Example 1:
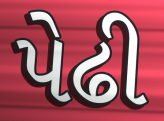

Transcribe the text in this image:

પેઢી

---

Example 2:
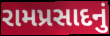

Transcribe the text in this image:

રામપ્રસાદનું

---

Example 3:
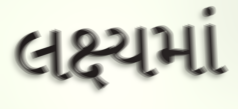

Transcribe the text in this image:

લક્ષ્યમાં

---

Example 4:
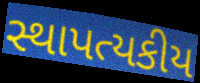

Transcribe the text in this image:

સ્થાપત્યકીય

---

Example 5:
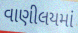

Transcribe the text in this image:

વાણીલયમાં